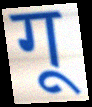
गू